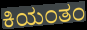
ಕಿಯಂತಂ